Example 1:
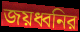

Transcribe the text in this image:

জয়ধ্বনির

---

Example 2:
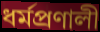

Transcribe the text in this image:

ধর্মপ্রণালী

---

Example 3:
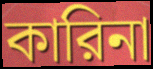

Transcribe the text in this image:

কারিনা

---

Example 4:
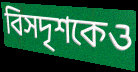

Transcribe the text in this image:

বিসদৃশকেও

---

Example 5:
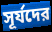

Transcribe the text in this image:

সূর্যদের